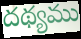
దథ్యము